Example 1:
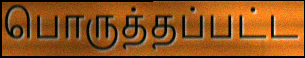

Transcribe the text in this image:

பொருத்தப்பட்ட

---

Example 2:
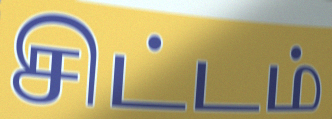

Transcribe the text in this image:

சிட்டம்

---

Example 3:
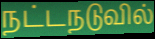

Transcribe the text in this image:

நட்டநடுவில்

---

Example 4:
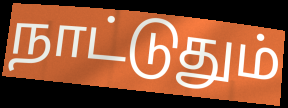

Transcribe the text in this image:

நாட்டுதும்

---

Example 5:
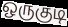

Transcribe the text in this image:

ஒருகுடி